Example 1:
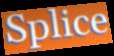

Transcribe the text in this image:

Splice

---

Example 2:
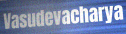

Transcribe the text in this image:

Vasudevacharya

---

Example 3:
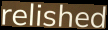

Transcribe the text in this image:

relished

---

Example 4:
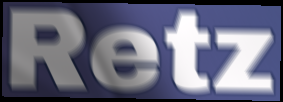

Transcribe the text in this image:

Retz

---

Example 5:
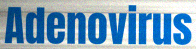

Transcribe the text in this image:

Adenovirus